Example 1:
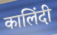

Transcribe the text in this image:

कालिंदी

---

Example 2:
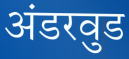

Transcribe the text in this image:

अंडरवुड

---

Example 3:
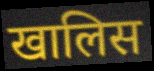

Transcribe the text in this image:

खालिस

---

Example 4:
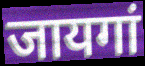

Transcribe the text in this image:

जायगां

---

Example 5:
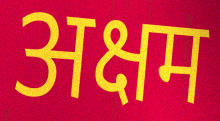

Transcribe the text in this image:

अक्षम